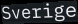
Sverige